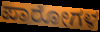
ಪಾರೋಗಳ